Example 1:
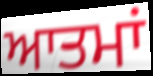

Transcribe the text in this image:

ਆਤਮਾਂ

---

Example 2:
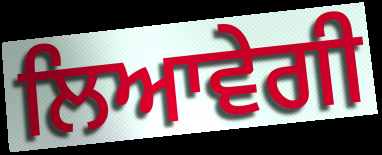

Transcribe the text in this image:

ਲਿਆਵੇਗੀ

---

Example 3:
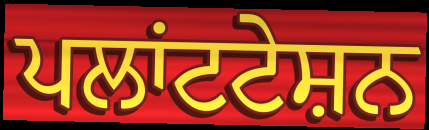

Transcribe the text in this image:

ਪਲਾਂਟਟੇਸ਼ਨ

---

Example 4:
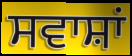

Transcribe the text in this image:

ਸਵਾਸ਼ਾਂ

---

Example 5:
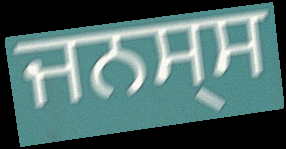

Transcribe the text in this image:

ਜਨਸ੍ਸ